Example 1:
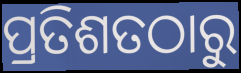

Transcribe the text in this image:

ପ୍ରତିଶତଠାରୁ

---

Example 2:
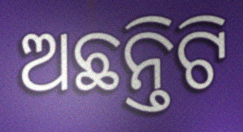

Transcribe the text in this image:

ଅଛନ୍ତିଟି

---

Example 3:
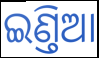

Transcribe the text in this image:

ଇଣ୍ତିଆ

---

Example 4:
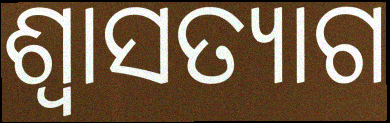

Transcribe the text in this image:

ଶ୍ବାସତ୍ୟାଗ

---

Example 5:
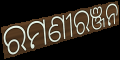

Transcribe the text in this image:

ରମଣୀରଞ୍ଜନ